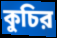
কুচির